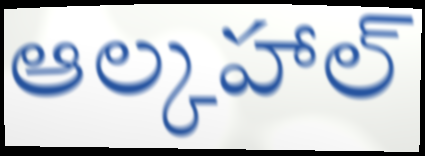
ఆల్కహాల్